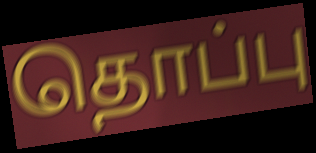
தொப்பு